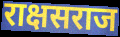
राक्षसराज